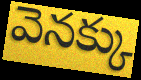
వెనక్కు